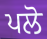
ਪਲੋ